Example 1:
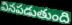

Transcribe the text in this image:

వినపడుతుంది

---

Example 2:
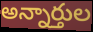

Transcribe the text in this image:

అన్నార్తుల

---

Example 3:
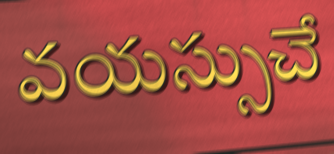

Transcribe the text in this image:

వయస్సుచే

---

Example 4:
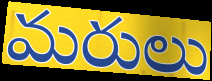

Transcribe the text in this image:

మరులు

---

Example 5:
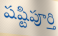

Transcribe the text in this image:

షష్టిపూర్తి